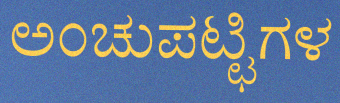
ಅಂಚುಪಟ್ಟಿಗಳ